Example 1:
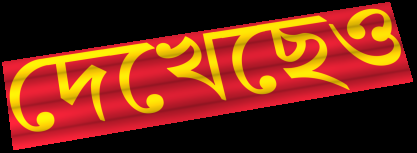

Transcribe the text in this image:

দেখেছেও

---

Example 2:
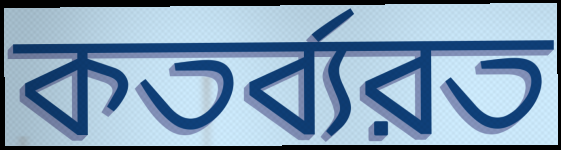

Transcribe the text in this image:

কতর্ব্যরত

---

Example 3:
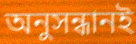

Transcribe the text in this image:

অনুসন্ধানই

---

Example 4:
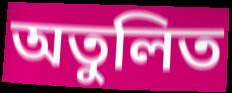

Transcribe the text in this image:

অতুলিত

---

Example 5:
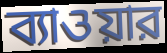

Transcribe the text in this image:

ব্যাওয়ার